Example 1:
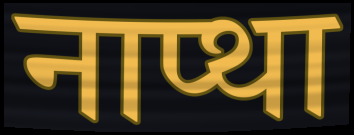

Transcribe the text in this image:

नाप्था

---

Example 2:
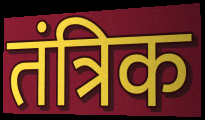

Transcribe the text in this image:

तंत्रिक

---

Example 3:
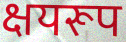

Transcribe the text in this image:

क्षयरूप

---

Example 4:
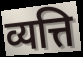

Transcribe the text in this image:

व्यत्ति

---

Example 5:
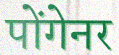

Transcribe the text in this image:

पोंगेनर